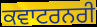
ਕਵਾਟਰਨਰੀ